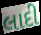
લાદી